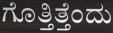
ಗೊತ್ತಿತ್ತೆಂದು